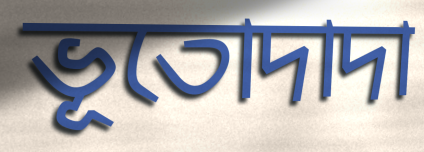
ভূতোদাদা